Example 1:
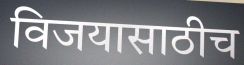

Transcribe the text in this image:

विजयासाठीच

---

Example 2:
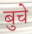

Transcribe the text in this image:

बुचे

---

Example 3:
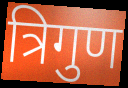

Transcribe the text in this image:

त्रिगुण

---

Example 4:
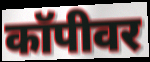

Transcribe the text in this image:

कॉपीवर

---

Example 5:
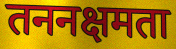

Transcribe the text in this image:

तननक्षमता